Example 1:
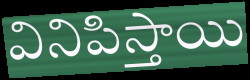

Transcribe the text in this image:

వినిపిస్తాయి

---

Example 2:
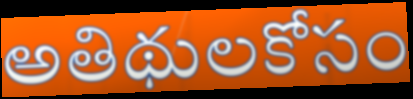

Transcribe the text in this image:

అతిథులకోసం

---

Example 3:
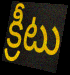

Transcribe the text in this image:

క్రీటు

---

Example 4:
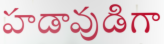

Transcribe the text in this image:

హడావుడిగా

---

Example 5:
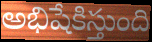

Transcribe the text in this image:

అభిషేకిస్తుంది